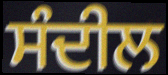
ਸੰਦੀਲ